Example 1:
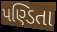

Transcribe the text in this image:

પણ્ડિતા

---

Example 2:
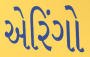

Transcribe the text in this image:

એરિંગો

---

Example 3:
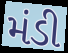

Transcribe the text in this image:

મંડી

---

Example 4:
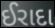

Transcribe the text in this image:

ઈરાદા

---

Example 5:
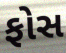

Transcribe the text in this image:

ફોસ